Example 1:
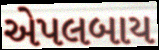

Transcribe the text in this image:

એપલબાય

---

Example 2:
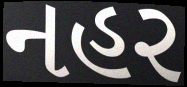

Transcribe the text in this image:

નહર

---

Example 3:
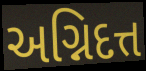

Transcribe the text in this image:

અગ્નિદત્ત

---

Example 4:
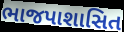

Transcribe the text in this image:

ભાજપાશાસિત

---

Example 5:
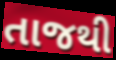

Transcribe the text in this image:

તાજથી